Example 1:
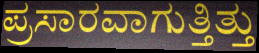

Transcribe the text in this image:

ಪ್ರಸಾರವಾಗುತ್ತಿತ್ತು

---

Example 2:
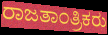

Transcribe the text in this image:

ರಾಜತಾಂತ್ರಿಕರು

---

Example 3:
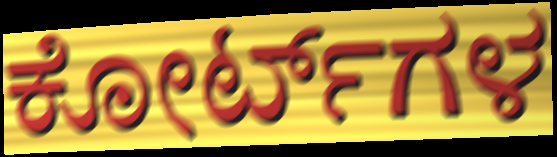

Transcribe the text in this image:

ಕೋರ್ಟ್‌ಗಳ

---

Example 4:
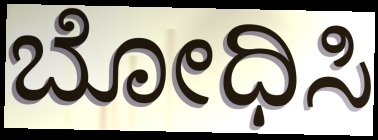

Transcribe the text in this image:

ಬೋಧಿಸಿ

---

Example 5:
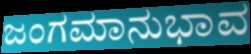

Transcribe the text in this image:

ಜಂಗಮಾನುಭಾವ